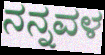
ನನ್ನವಳ